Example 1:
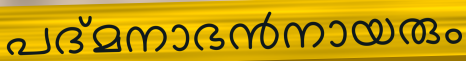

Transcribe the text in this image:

പദ്മനാഭൻനായരും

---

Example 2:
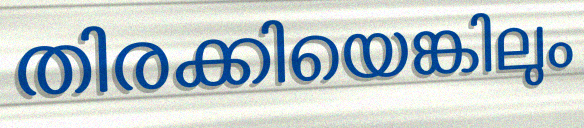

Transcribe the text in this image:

തിരക്കിയെങ്കിലും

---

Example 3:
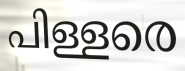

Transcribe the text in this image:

പിള്ളരെ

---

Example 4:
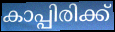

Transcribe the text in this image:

കാപ്പിരിക്ക്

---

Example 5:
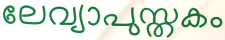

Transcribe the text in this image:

ലേവ്യാപുസ്തകം